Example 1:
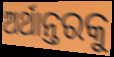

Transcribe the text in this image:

ଅର୍ଥାନ୍ତରକୁ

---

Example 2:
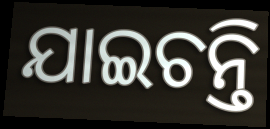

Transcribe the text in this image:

ଯାଇଚନ୍ତି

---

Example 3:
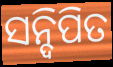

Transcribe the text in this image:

ସନ୍ଦିପିତ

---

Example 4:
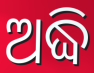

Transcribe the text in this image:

ଅଦ୍ଧି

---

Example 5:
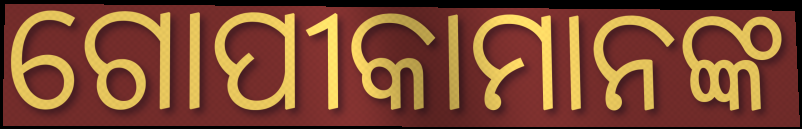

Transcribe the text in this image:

ଗୋପୀକାମାନଙ୍କ